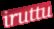
iruttu